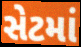
સેટમાં